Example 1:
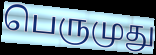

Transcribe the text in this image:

பெருமுது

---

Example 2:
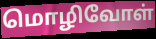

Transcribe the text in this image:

மொழிவோள்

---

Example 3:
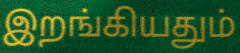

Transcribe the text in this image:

இறங்கியதும்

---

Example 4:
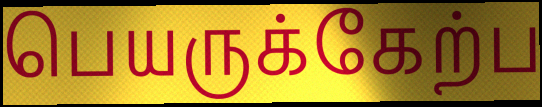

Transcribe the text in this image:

பெயருக்கேற்ப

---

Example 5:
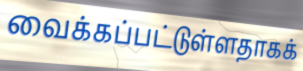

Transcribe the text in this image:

வைக்கப்பட்டுள்ளதாகக்